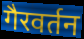
गैरवर्तन